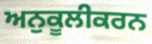
ਅਨੁਕੂਲੀਕਰਨ